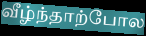
வீழ்ந்தாற்போல